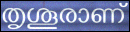
തൃശൂരാണ്